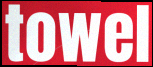
towel